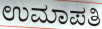
ಉಮಾಪತಿ